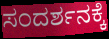
ಸಂದರ್ಶನಕ್ಕೆ